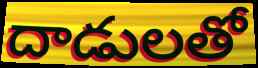
దాడులతో